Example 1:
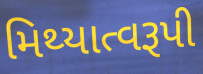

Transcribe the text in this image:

મિથ્યાત્વરૂપી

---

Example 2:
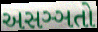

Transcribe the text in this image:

અસઞ્ઞતો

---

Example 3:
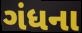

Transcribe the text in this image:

ગંધના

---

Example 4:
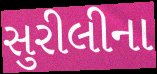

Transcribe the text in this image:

સુરીલીના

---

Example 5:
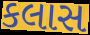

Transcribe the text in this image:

કલાસ